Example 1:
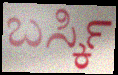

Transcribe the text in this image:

ಬರ್ಸ್ಕಿ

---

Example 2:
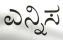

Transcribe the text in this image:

ಎನ್ನಿಸ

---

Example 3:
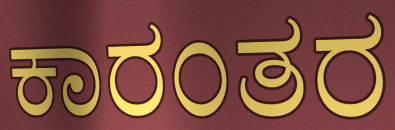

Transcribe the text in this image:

ಕಾರಂತರ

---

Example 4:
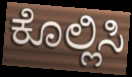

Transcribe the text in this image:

ಕೊಲ್ಲಿಸಿ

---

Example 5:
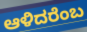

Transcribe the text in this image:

ಆಳಿದರೆಂಬ